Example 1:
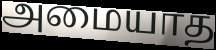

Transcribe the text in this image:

அமையாத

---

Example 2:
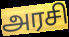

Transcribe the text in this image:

அரசி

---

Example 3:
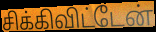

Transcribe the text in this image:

சிக்கிவிட்டேன்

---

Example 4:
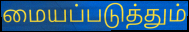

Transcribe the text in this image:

மையப்படுத்தும்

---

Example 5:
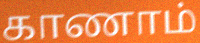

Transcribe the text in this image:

காணாம்